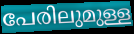
പേരിലുമുള്ള